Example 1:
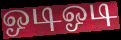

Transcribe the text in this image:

ஓடிஓடி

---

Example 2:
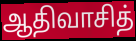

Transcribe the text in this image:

ஆதிவாசித்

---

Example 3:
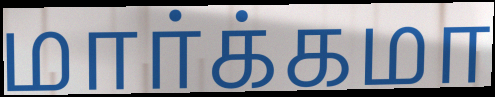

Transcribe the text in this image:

மார்க்கமா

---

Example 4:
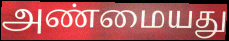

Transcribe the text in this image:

அண்மையது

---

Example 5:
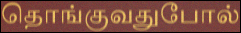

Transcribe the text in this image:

தொங்குவதுபோல்